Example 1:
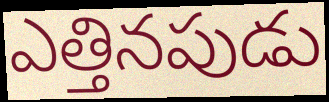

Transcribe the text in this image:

ఎత్తినపుడు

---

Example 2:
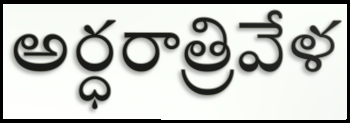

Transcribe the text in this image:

అర్ధరాత్రివేళ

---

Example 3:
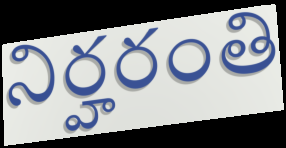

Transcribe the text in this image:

నిర్హరంతి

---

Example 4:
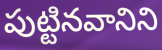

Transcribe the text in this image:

పుట్టినవానిని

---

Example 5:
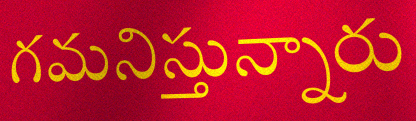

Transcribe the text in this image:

గమనిస్తున్నారు